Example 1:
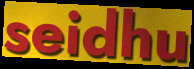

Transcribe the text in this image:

seidhu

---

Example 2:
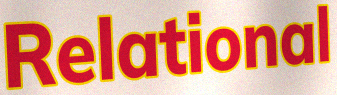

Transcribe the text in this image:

Relational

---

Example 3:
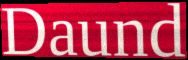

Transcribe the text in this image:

Daund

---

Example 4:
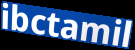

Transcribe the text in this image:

ibctamil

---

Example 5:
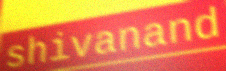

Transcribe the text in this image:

shivanand